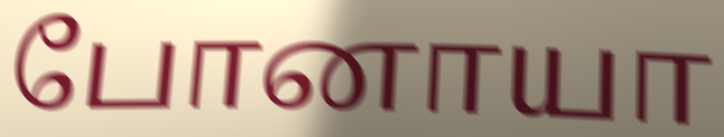
போனாயா